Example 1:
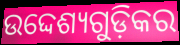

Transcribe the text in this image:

ଉଦ୍ଦେଶ୍ୟଗୁଡ଼ିକର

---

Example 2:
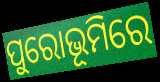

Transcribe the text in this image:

ପୁରୋଭୂମିରେ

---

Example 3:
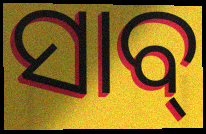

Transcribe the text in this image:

ସାବ୍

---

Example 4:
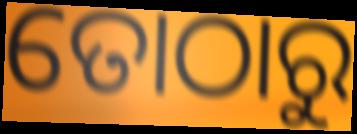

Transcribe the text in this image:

ତୋଠାରୁ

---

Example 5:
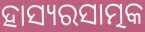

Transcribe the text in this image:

ହାସ୍ୟରସାତ୍ମକ